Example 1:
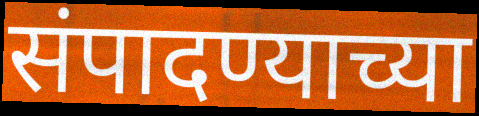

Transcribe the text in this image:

संपादण्याच्या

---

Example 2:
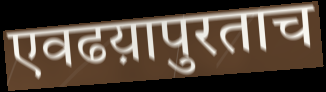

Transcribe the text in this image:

एवढय़ापुरताच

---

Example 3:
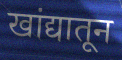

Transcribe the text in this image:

खांद्यातून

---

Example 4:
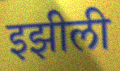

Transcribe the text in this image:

इझीली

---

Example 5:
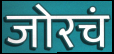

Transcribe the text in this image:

जोरचं